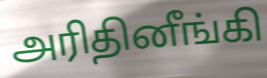
அரிதினீங்கி